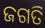
ଜଗତି